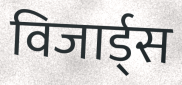
विजार्ड्स